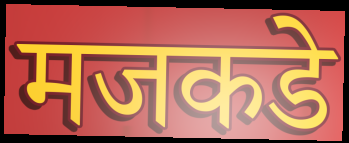
मजकडे